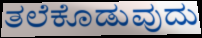
ತಲೆಕೊಡುವುದು